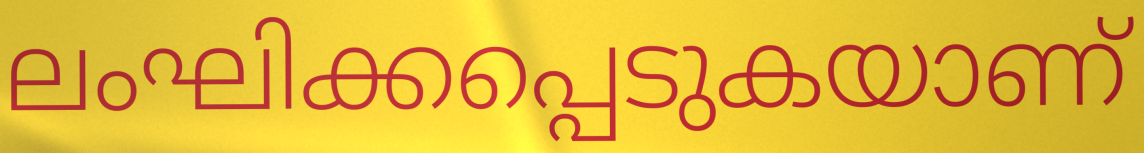
ലംഘിക്കപ്പെടുകയാണ്